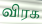
விரக